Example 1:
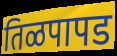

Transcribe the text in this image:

तिळपापड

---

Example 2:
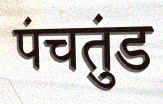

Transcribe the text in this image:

पंचतुंड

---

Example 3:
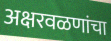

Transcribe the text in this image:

अक्षरवळणांचा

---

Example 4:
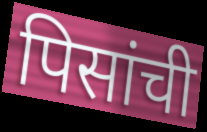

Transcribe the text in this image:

पिसांची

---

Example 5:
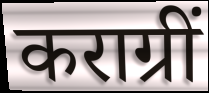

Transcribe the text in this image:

कराग्रीं